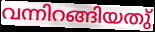
വന്നിറങ്ങിയതു്